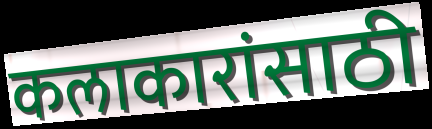
कलाकारांसाठी